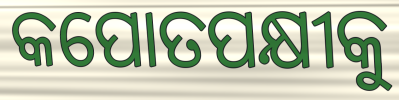
କପୋତପକ୍ଷୀକୁ